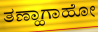
ತಣ್ಹಾಗಾಹೋ